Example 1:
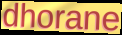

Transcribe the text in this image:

dhorane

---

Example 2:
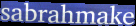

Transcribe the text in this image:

sabrahmake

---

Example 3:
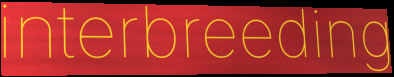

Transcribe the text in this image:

interbreeding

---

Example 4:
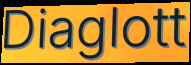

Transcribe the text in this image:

Diaglott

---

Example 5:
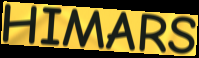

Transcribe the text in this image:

HIMARS